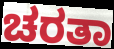
ಚರತಾ